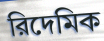
রিদেমিক